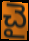
చై